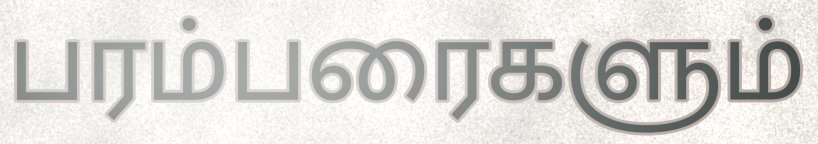
பரம்பரைகளும்